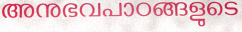
അനുഭവപാഠങ്ങളുടെ